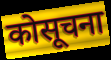
कोसूचना